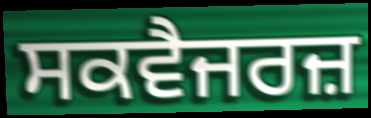
ਸਕਵੈਜਰਜ਼